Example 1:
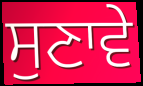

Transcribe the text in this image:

ਸੁਣਾਵੇ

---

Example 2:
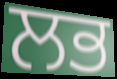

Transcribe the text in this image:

ਲਭ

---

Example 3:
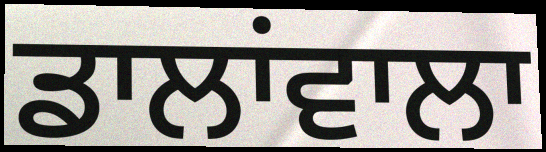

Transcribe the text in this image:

ਡਾਲਾਂਵਾਲਾ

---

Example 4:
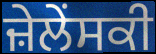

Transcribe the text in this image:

ਜ਼ੇਲੇਂਸਕੀ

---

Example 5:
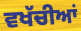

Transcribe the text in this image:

ਵਖੱਚੀਆਂ